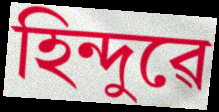
হিন্দুৱে